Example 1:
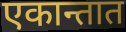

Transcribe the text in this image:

एकान्तात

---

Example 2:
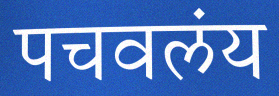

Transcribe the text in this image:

पचवलंय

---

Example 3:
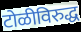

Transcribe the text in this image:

टोळीविरुद्ध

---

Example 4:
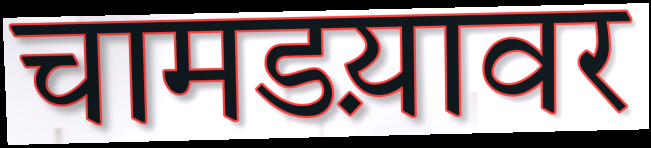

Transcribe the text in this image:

चामडय़ावर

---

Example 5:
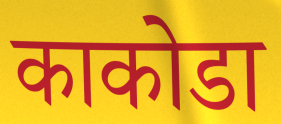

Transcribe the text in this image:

काकोडा